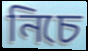
নিচে